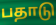
பதாடு